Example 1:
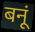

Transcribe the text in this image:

बनूं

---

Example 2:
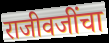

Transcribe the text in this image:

राजीवजींचा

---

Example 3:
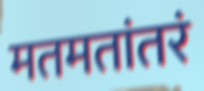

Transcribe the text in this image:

मतमतांतरं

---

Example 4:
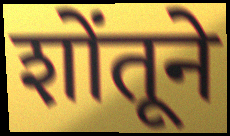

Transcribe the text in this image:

शोंतूने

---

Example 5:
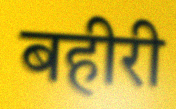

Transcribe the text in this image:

बहीरी